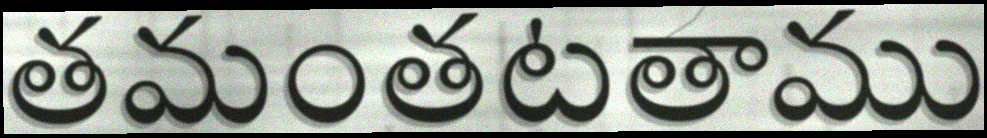
తమంతటతాము